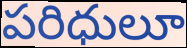
పరిధులూ